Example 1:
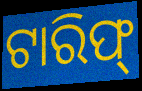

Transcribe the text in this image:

ଟାରିଫ୍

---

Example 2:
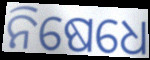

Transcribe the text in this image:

ନିଷେଧେ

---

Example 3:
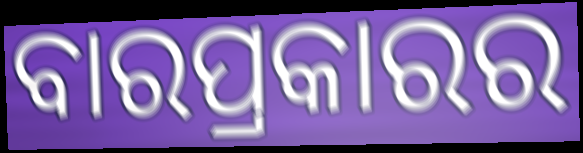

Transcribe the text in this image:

ବାରପ୍ରକାରର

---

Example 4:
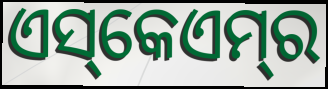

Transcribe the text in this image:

ଏସ୍‌କେଏମ୍‌ର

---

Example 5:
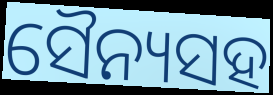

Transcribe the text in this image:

ସୈନ୍ୟସହ